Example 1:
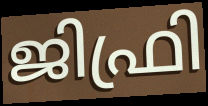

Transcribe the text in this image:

ജിഫ്രി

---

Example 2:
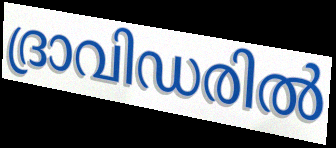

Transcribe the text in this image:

ദ്രാവിഡരിൽ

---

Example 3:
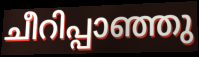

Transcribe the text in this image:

ചീറിപ്പാഞ്ഞു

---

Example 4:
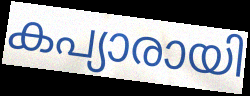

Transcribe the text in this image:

കപ്യാരായി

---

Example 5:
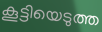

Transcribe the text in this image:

കൂട്ടിയെടുത്ത